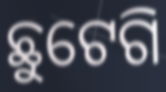
ଛୁଟେଗି